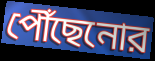
পৌঁছেনোর